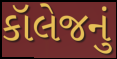
કૉલેજનું